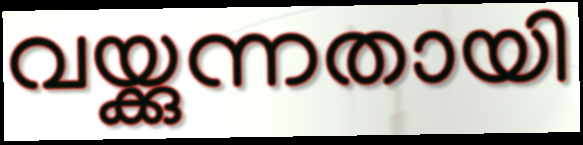
വയ്ക്കുന്നതായി